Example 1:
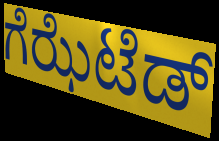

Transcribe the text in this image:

ಗೆಝೆಟೆಡ್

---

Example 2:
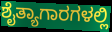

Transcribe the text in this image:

ಶೈತ್ಯಾಗಾರಗಳಲ್ಲಿ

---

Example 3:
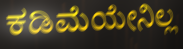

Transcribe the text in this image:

ಕಡಿಮೆಯೇನಿಲ್ಲ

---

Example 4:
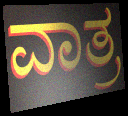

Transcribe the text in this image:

ವಾತ್ರ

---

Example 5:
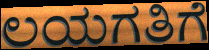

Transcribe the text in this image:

ಲಯಗತಿಗೆ